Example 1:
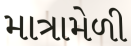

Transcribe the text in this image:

માત્રામેળી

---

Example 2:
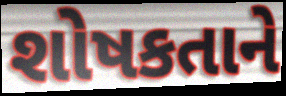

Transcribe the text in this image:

શોષકતાને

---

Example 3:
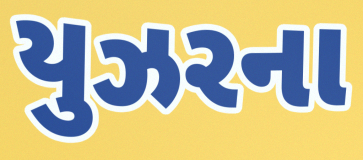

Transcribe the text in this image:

યુઝરના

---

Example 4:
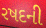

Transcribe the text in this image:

રષદની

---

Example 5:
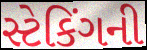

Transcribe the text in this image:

સ્ટેકિંગની